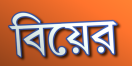
বিয়ের